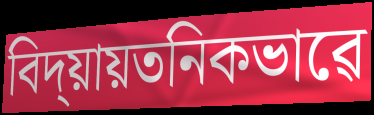
বিদ্য়ায়তনিকভাৱে